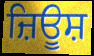
ਜ਼ਿਊਸ਼